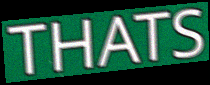
THATS